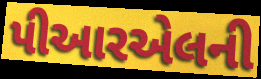
પીઆરએલની